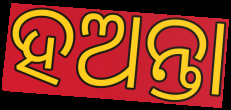
ହଅନ୍ତା